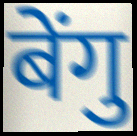
बेंगु